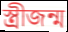
স্ত্রীজন্ম